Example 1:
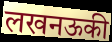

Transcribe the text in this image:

लखनऊकी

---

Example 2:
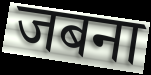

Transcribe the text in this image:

जबना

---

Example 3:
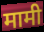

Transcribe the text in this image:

मामी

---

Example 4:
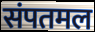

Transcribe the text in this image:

संपतमल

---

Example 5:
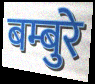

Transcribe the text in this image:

बम्बुरे